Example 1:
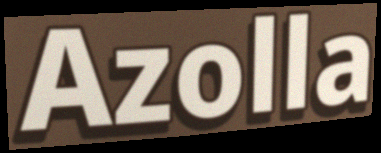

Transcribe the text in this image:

Azolla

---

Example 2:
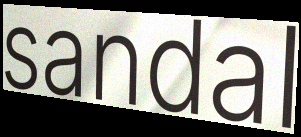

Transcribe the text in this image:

sandal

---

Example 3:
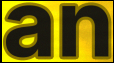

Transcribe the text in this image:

an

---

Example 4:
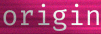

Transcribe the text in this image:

origin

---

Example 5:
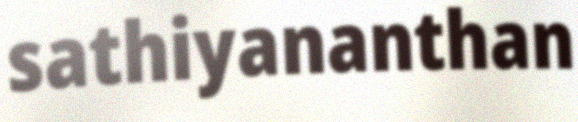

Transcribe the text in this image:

sathiyananthan